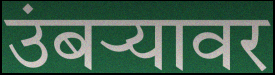
उंबर्‍यावर